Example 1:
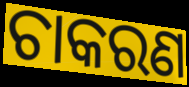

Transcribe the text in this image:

ଚାକରଣ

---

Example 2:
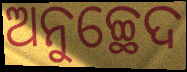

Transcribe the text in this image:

ଅନୁଚ୍ଛେଦ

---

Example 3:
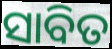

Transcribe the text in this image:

ସାବିତ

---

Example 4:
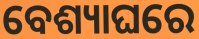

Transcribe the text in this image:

ବେଶ୍ୟାଘରେ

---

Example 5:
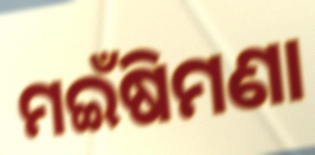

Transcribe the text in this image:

ମଇଁଷିମଣା